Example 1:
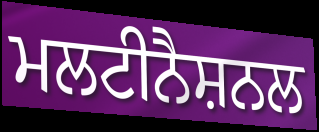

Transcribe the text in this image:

ਮਲਟੀਨੈਸ਼ਨਲ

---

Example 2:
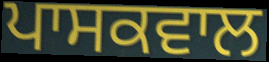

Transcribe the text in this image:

ਪਾਸਕਵਾਲ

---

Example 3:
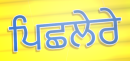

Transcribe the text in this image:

ਪਿਛਲੇਰੇ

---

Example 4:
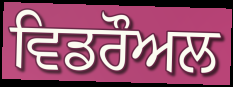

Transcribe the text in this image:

ਵਿਡਰੌਅਲ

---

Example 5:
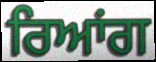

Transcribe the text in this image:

ਰਿਆਂਗ